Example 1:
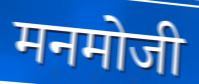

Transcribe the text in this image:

मनमोजी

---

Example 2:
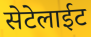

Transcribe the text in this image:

सेटेलाईट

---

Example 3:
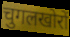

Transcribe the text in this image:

चुगलखोरों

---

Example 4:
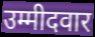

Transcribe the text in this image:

उम्मीदवार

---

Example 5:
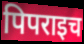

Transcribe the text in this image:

पिपराइच